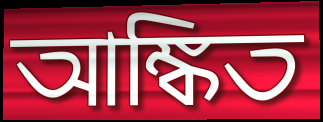
আঙ্কিত